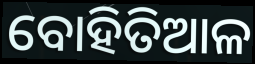
ବୋହିତିଆଳ